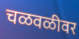
चळवळीवर